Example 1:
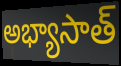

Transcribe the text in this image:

అభ్యాసాత్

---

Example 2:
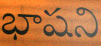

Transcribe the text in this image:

భాషని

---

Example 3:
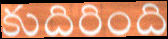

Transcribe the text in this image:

కుదిరింది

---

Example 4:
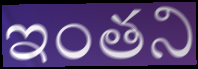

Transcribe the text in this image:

ఇంతని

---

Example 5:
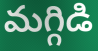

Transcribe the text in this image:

మగ్గిడి